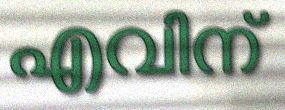
എവിന്